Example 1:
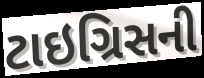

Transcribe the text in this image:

ટાઇગ્રિસની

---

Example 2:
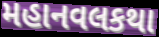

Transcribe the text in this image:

મહાનવલકથા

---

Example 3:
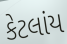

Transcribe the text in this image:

કેટલાંય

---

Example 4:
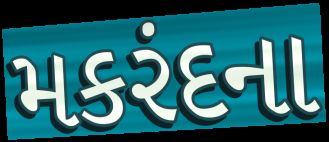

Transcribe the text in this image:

મકરંદના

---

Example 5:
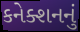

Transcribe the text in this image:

કનેક્શનનું